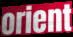
orient